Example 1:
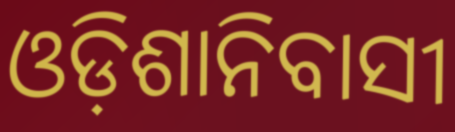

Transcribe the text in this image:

ଓଡ଼ିଶାନିବାସୀ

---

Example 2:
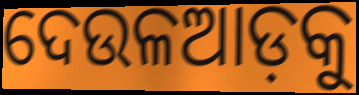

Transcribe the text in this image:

ଦେଉଳଆଡ଼କୁ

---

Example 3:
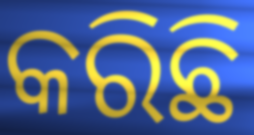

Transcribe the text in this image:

କରିଛି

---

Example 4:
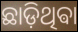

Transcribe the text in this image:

ଛାଡ଼ିଥିଵା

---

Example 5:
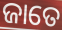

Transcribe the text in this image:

ଜାତେ